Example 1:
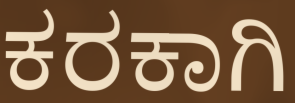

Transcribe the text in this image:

ಕರಕಾಗಿ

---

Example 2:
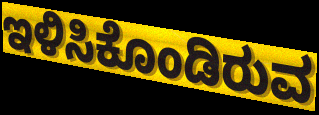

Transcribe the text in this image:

ಇಳಿಸಿಕೊಂಡಿರುವ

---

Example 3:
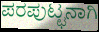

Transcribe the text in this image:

ಪರಪುಟ್ಟನಾಗಿ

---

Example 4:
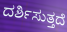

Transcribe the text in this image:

ದರ್ಶಿಸುತ್ತದೆ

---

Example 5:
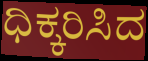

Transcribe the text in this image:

ಧಿಕ್ಕರಿಸಿದ